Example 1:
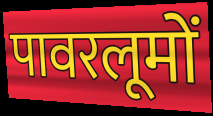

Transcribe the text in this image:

पावरलूमों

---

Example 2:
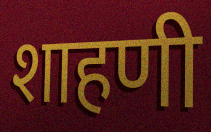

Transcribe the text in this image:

शाहणी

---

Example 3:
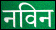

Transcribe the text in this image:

नविन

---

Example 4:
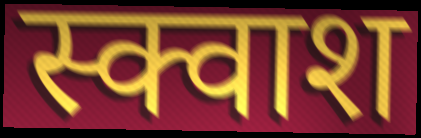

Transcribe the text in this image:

स्क्वाश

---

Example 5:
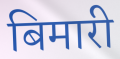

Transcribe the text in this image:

बिमारी